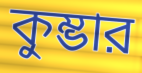
কুম্ভার